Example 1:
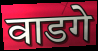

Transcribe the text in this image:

वाडगे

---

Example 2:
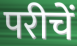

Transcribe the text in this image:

परीचें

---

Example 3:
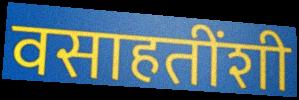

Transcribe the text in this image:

वसाहतींशी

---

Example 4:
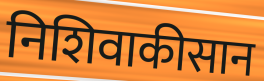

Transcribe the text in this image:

निशिवाकीसान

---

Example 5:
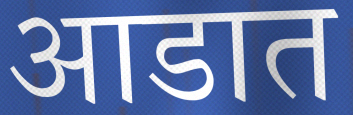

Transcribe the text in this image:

आडात